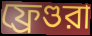
ফ্রেণ্ডরা